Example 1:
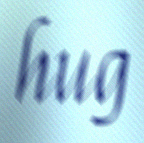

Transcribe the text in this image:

hug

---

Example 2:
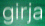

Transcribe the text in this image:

girja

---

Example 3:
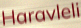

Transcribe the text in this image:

Haravleli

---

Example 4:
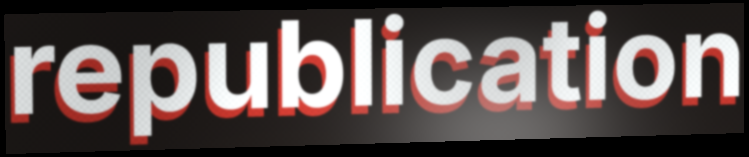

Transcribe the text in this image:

republication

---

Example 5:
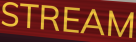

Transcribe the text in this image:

STREAM